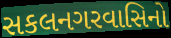
સકલનગરવાસિનો